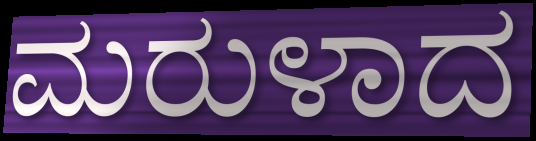
ಮರುಳಾದ